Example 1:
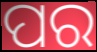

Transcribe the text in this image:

ପର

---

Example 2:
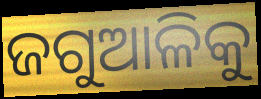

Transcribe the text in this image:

ଜଗୁଆଳିକୁ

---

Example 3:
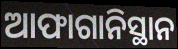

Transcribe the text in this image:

ଆଫାଗାନିସ୍ଥାନ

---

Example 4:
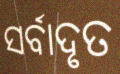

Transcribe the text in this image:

ସର୍ବାଦୃତ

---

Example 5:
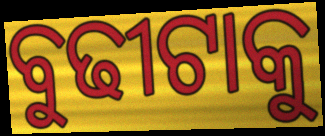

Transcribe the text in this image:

ବୁଢୀଟାକୁ